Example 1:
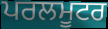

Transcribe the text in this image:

ਪਰਲਮੂਟਰ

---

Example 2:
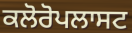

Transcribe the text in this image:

ਕਲੋਰੋਪਲਾਸਟ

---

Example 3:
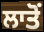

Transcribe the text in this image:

ਲਾਤੋਂ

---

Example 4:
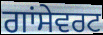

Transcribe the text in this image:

ਗਾਂਸੇਵਰਟ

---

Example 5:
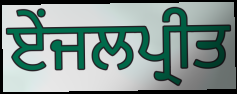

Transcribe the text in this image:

ਏਂਜਲਪ੍ਰੀਤ